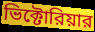
ভিক্টোরিয়ার